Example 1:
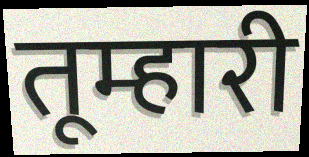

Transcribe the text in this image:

तूम्हारी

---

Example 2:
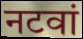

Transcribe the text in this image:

नटवां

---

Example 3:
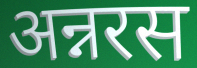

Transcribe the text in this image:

अन्नरस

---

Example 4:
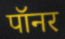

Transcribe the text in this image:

पॉनर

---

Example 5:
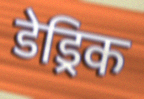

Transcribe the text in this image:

डेड्रिक